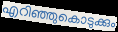
എറിഞ്ഞുകൊടുക്കും